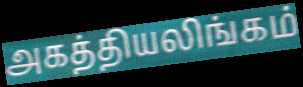
அகத்தியலிங்கம்